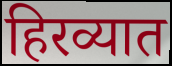
हिरव्यात